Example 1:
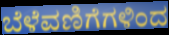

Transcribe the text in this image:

ಬೆಳೆವಣಿಗೆಗಳಿಂದ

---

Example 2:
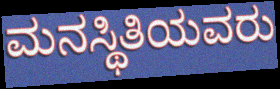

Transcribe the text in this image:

ಮನಸ್ಥಿತಿಯವರು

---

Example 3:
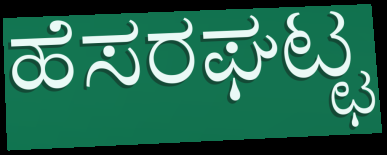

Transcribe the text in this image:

ಹೆಸರಘಟ್ಟ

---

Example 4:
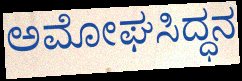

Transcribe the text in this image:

ಅಮೋಘಸಿದ್ಧನ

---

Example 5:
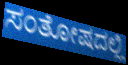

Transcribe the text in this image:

ಸಂತೋಷದಲ್ಲಿ